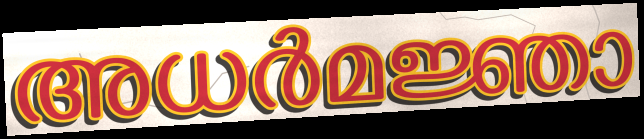
അധർമജ്ഞാ